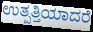
ಉತ್ಪತ್ತಿಯಾದರೆ